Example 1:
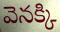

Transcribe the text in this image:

వెనక్కి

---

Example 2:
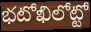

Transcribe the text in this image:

భటోఖిలోట్టో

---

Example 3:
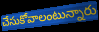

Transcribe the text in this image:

చేసుకోవాలంటున్నారు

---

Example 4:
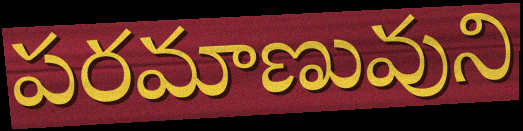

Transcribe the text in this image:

పరమాణువుని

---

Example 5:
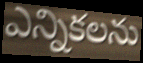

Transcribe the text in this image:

ఎన్నికలను